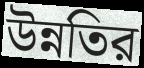
উন্নতির